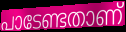
പാടേണ്ടതാണ്